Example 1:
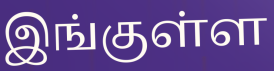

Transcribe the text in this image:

இங்குள்ள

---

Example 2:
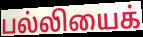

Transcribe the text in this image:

பல்லியைக்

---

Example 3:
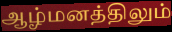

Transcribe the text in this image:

ஆழ்மனத்திலும்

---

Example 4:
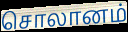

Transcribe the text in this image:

சொலானம்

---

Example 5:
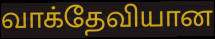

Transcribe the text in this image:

வாக்தேவியான